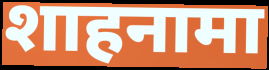
शाहनामा